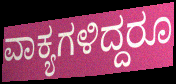
ವಾಕ್ಯಗಳಿದ್ದರೂ